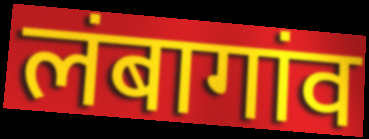
लंबागांव